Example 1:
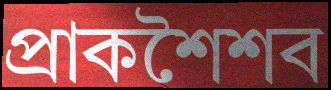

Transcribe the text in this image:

প্রাকশৈশব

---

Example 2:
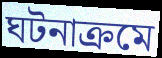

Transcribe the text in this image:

ঘটনাক্রমে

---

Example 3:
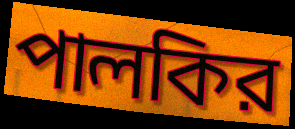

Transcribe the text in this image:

পালকির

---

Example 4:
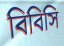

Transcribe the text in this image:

বিবিসি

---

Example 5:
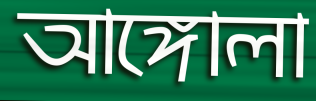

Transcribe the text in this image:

আঙ্গোলা